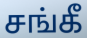
சங்கீ